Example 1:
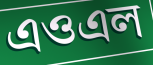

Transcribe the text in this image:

এওএল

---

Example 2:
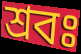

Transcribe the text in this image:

শ্রবঃ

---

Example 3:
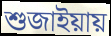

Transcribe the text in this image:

শুজাইয়ায়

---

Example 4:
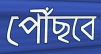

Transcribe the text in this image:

পৌঁছবে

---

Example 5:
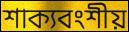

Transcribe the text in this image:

শাক্যবংশীয়